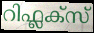
റിഫ്ലക്സ്